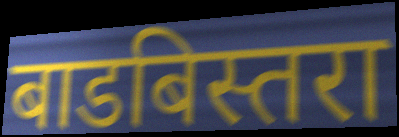
बाडबिस्तरा